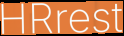
HRrest